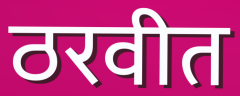
ठरवीत